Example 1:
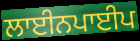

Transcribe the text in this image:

ਲਾਈਨਪਾਈਪ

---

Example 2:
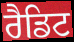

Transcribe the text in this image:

ਰੈਡਿਟ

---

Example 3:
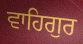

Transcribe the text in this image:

ਵਾਹਿਗੁਰ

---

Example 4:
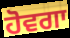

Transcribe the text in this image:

ਹੋਵਗਾ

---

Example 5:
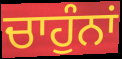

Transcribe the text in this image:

ਚਾਹੁੰਨਾਂ